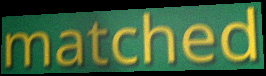
matched